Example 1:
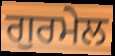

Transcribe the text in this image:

ਗੁਰਮੇਲ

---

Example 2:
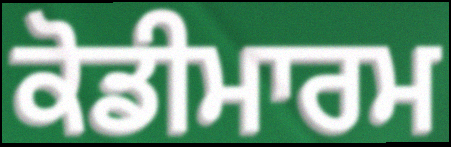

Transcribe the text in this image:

ਕੋਡੀਮਾਰਮ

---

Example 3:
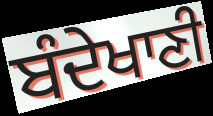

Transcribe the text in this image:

ਬੰਦੇਖਾਣੀ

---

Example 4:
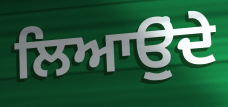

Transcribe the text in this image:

ਲਿਆਉੁਂਦੇ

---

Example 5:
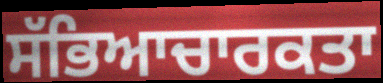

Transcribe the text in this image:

ਸੱਭਿਆਚਾਰਕਤਾ